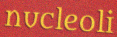
nucleoli